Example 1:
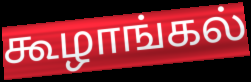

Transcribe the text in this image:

கூழாங்கல்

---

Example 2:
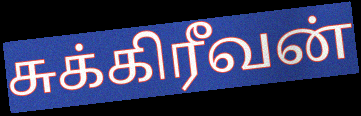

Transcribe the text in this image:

சுக்கிரீவன்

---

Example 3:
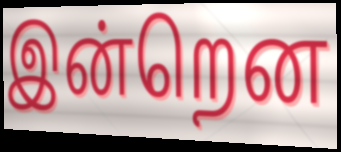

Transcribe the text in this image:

இன்றென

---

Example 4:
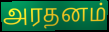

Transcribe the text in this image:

அரதனம்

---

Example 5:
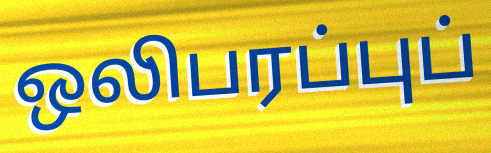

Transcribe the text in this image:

ஒலிபரப்புப்